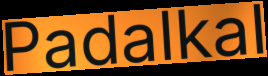
Padalkal